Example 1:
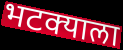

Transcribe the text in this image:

भटक्याला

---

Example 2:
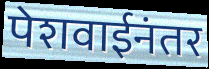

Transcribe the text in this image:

पेशवाईनंतर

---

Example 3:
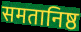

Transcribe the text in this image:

समतानिष्ठ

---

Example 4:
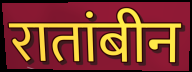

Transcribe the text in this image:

रातांबीन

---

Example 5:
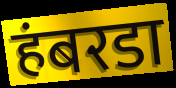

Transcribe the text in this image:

हंबरडा